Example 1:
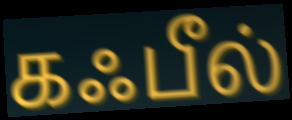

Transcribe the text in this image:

கஃபீல்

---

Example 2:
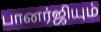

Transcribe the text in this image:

பானர்ஜியும்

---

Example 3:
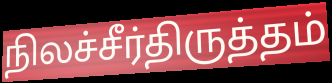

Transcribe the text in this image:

நிலச்சீர்திருத்தம்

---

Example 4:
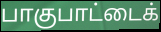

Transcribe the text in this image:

பாகுபாட்டைக்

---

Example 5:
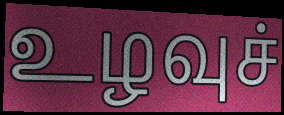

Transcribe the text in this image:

உழவுச்